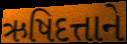
ઋષિદત્તાને